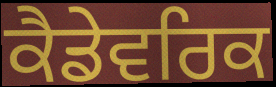
ਕੈਡੇਵਰਿਕ